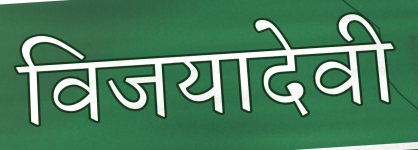
विजयादेवी